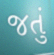
જતું